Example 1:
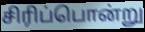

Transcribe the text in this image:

சிரிப்பொன்று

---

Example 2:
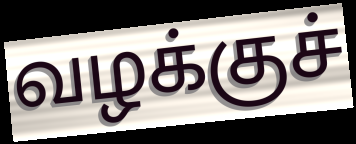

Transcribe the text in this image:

வழக்குச்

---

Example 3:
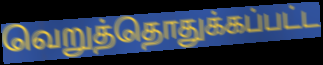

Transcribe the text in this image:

வெறுத்தொதுக்கப்பட்ட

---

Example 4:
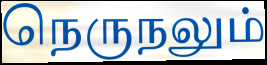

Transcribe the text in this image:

நெருநலும்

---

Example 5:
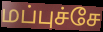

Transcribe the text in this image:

மப்புச்சே